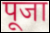
पूजा